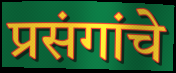
प्रसंगांचे